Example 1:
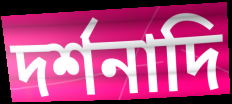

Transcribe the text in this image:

দর্শনাদি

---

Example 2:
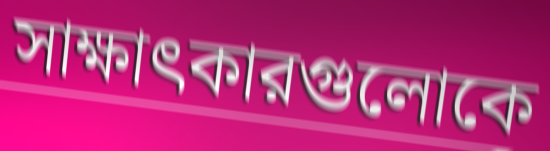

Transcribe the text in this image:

সাক্ষাৎকারগুলোকে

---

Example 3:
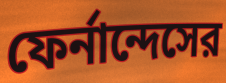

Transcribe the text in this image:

ফের্নান্দেসের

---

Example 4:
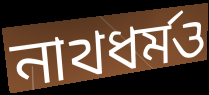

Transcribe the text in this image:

নাথধর্মও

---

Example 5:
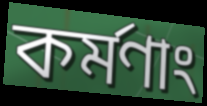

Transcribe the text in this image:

কর্মণাং